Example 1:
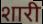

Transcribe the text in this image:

शारी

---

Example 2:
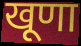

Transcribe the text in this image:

खूणा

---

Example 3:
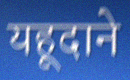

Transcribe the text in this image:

यहूदाने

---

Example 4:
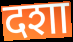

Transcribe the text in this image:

दशा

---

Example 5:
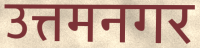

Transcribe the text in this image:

उत्तमनगर